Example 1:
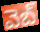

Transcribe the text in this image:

వెబ్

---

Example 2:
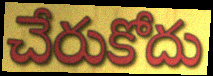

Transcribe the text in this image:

చేరుకోదు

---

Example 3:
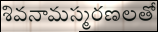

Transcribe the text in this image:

శివనామస్మరణలతో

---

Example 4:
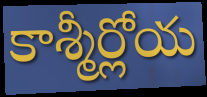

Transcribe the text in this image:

కాశ్మీర్లోయ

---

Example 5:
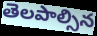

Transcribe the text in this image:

తెలపాల్సిన